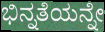
ಭಿನ್ನತೆಯನ್ನೇ